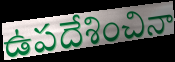
ఉపదేశించినా